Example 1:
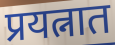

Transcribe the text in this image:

प्रयत्नात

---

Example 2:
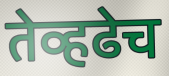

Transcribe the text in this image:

तेव्हढेच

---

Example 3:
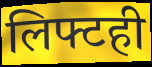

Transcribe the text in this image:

लिफ्टही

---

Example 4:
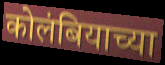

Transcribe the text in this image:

कोलंबियाच्या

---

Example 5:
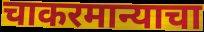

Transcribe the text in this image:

चाकरमान्याचा